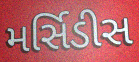
મર્સિડીસ